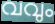
വവും